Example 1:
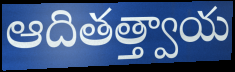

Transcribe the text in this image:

ఆదితత్త్వాయ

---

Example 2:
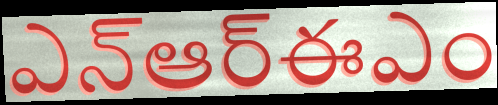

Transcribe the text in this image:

ఎన్ఆర్ఈఎం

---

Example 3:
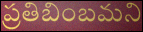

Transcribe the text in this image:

ప్రతిబింబమని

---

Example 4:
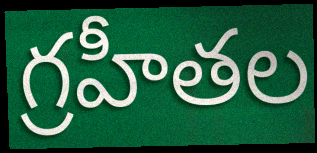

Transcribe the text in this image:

గ్రహీతల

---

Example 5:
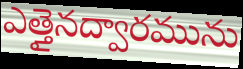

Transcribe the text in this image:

ఎత్తైనద్వారమును